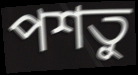
পশতু